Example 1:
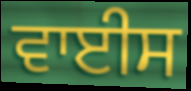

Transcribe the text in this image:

ਵਾਈਸ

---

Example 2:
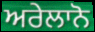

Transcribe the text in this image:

ਅਰੇਲਾਨੋ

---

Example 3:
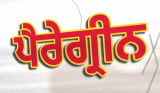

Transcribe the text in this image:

ਪੈਰੇਗ੍ਰੀਨ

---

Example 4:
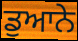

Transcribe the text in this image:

ਡੁਆਨੇ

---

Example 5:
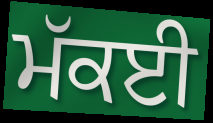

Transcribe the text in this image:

ਮੱਕਈ